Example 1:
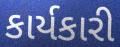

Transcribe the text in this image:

કાર્યકારી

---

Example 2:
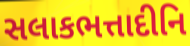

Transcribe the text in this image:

સલાકભત્તાદીનિ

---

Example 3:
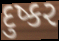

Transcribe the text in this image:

દુષ્કર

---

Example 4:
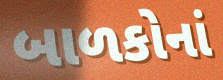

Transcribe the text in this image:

બાળકોનાં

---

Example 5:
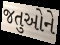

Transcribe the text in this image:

જતુઓને